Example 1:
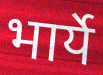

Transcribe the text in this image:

भार्ये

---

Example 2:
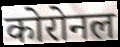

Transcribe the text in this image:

कोरोनल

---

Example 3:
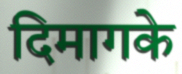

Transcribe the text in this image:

दिमागके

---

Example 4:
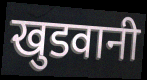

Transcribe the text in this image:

खुडवानी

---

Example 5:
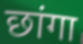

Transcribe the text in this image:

छांगा